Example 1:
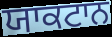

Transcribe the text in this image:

ਯਾਕਟਾਨ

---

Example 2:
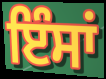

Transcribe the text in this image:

ਇੰਸਾਂ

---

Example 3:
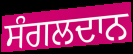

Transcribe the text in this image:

ਸੰਗਲਦਾਨ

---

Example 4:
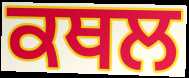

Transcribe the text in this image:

ਕਥਲ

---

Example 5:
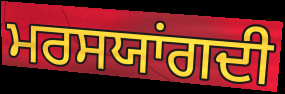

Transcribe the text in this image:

ਮਰਸਯਾਂਗਦੀ